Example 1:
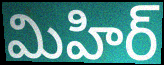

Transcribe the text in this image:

మిహిర్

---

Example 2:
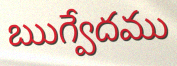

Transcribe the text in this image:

ఋగ్వేదము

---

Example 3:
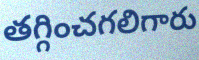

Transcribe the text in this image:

తగ్గించగలిగారు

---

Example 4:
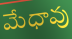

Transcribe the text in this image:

మేధావు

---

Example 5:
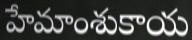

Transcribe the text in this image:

హేమాంశుకాయ